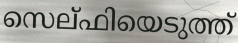
സെല്ഫിയെടുത്ത്